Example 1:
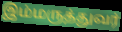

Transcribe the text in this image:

இம்மருத்துவர்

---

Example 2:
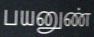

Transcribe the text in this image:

பயனுண்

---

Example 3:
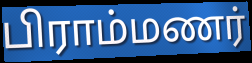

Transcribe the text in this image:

பிராம்மணர்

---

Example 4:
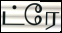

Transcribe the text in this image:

ட்ரே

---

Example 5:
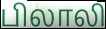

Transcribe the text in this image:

பிலாலி